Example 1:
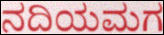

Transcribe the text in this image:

ನದಿಯಮಗ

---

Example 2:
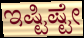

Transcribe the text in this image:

ಇಷ್ಟಿಷ್ಟೇ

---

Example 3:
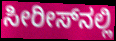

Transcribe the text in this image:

ಸೀರೀಸ್‌ನಲ್ಲಿ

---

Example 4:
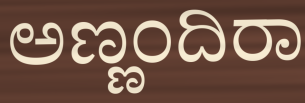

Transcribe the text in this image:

ಅಣ್ಣಂದಿರಾ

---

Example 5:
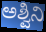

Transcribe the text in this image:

ಅಶ್ವಿನಿ